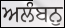
ਅਲੰਬਨੁ